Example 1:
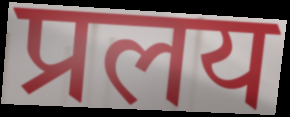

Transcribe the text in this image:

प्रलय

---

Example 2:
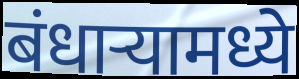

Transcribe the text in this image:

बंधाऱ्यामध्ये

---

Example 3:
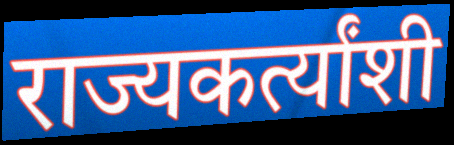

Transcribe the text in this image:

राज्यकर्त्यांशी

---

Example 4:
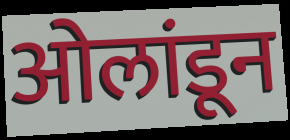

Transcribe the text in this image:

ओलांडून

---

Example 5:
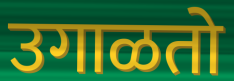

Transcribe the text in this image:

उगाळतो